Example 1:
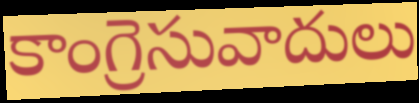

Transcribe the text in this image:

కాంగ్రెసువాదులు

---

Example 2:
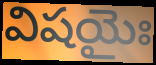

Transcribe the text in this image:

విషయైః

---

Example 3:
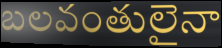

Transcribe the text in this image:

బలవంతులైనా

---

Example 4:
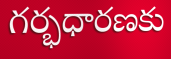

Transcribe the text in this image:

గర్భధారణకు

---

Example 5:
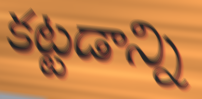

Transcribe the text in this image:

కట్టడాన్ని